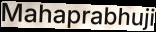
Mahaprabhuji